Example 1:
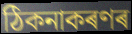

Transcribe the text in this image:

ঠিকনাকৰণৰ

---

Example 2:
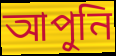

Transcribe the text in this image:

আপুনি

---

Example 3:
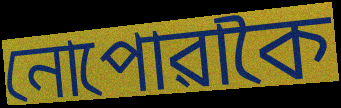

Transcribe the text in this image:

নোপোৱাকৈ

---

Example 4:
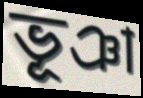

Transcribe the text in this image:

ভূঞা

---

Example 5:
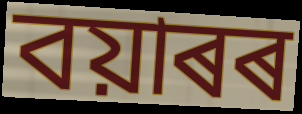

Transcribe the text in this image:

বয়াৰৰ